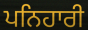
ਪਨਿਹਾਰੀ